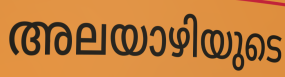
അലയാഴിയുടെ